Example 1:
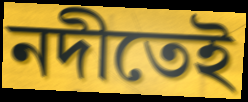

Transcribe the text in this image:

নদীতেই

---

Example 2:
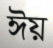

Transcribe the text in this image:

ঈয়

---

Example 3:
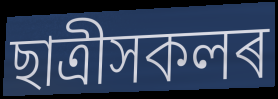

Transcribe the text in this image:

ছাত্ৰীসকলৰ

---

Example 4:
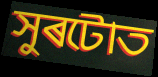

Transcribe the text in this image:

সুৰটোত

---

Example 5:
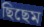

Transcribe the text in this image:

ছিছেম